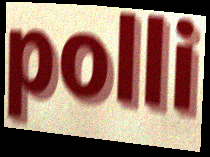
polli